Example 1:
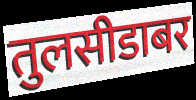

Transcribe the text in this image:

तुलसीडाबर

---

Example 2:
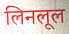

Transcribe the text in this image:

लिनलूल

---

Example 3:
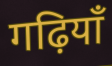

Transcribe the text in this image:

गढ़ियाँ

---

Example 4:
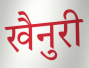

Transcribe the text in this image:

खैनुरी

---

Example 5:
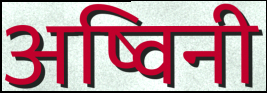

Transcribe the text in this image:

अष्विनी